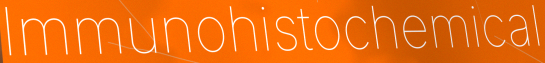
Immunohistochemical